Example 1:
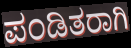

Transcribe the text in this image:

ಪಂಡಿತರಾಗಿ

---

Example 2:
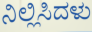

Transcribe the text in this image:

ನಿಲ್ಲಿಸಿದಳು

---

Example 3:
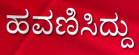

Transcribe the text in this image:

ಹವಣಿಸಿದ್ದು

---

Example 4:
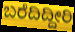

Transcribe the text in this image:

ಬರೆದಿದ್ದೀರಿ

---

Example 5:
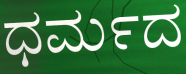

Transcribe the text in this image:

ಧರ್ಮದ